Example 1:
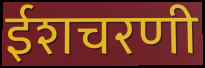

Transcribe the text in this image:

ईशचरणी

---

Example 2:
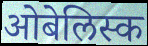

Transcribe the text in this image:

ओबेलिस्क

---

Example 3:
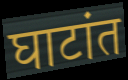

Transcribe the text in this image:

घाटांत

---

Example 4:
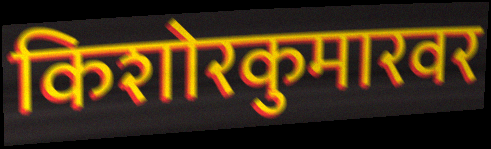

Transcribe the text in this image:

किशोरकुमारवर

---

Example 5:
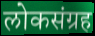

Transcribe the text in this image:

लोकसंग्रह